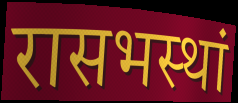
रासभस्थां